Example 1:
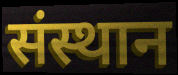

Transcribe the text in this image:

संस्थान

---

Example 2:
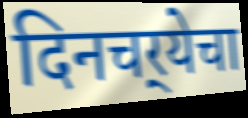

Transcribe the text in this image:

दिनचर्येचा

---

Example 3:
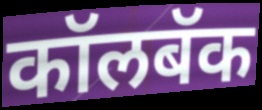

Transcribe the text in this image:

कॉलबॅक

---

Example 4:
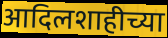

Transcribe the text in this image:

आदिलशाहीच्या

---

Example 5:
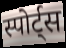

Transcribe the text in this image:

स्पोर्ट्स